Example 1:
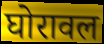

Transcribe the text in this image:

घोरावल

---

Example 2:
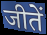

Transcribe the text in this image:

जीतें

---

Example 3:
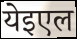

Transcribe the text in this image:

येइएल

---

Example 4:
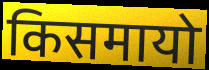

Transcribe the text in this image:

किसमायो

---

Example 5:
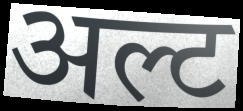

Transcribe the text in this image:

अल्ट